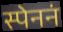
स्पेननं